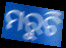
ମରୁଚି